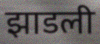
झाडली